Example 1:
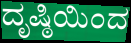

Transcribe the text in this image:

ದೃಷ್ಠಿಯಿಂದ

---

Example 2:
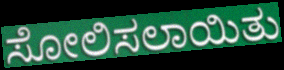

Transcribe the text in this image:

ಸೋಲಿಸಲಾಯಿತು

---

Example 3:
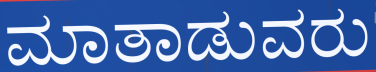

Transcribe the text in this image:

ಮಾತಾಡುವರು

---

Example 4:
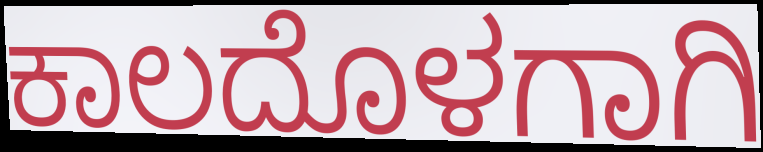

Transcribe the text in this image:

ಕಾಲದೊಳಗಾಗಿ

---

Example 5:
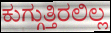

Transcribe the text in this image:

ಕುಗ್ಗುತ್ತಿರಲಿಲ್ಲ